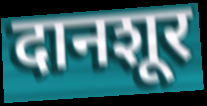
दानशूर